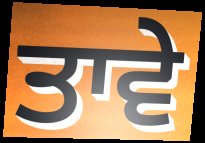
ਤਾਵੇ